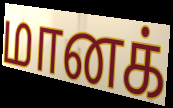
மானக்